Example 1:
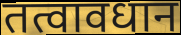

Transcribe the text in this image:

तत्‍वावधान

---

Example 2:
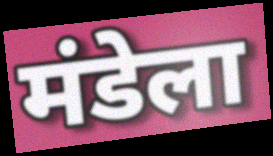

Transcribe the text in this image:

मंडेला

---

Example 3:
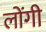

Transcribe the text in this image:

लोंगी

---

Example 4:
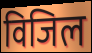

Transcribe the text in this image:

विजिल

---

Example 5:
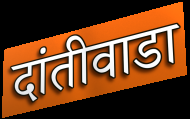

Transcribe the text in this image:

दांतीवाडा